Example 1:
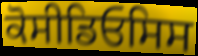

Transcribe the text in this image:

ਕੋਸੀਡਿਓਸਿਸ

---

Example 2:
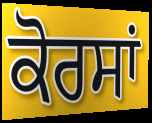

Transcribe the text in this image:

ਕੋਰਸਾਂ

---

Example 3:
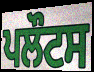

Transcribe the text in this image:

ਪਲੌਟਸ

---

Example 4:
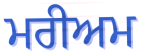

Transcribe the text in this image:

ਮਰੀਅਮ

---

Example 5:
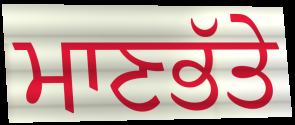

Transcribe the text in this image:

ਮਾਣਭੱਤੇ